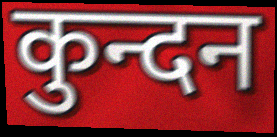
कुन्‍दन